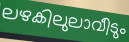
ലഴകിലുലാവീടും